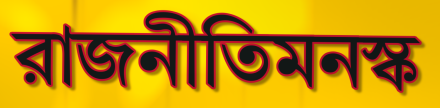
রাজনীতিমনস্ক